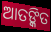
ଆତଙ୍କିତ